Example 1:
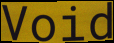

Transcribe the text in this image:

Void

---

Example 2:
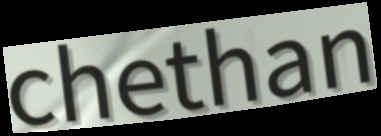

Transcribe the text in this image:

chethan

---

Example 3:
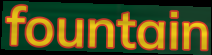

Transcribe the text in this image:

fountain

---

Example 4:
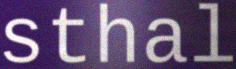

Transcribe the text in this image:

sthal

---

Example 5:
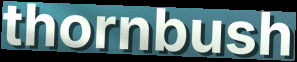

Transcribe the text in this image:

thornbush